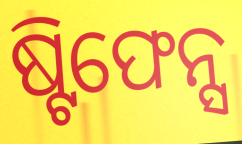
ଷ୍ଟିଫେନ୍ସ